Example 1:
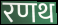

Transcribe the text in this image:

रणथ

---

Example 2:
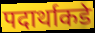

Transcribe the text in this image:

पदार्थाकडे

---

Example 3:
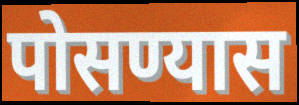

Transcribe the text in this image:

पोसण्यास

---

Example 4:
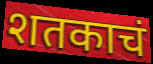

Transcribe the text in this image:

शतकाचं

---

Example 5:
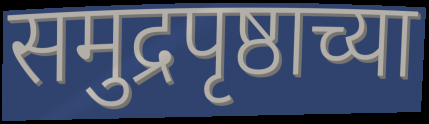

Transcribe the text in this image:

समुद्रपृष्ठाच्या